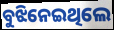
ବୁଝିନେଇଥିଲେ